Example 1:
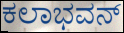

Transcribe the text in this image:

ಕಲಾಭವನ್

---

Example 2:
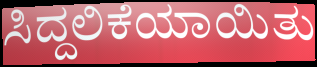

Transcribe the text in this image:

ಸಿದ್ದಲಿಕೆಯಾಯಿತು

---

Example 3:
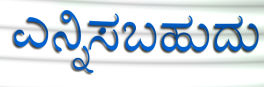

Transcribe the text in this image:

ಎನ್ನಿಸಬಹುದು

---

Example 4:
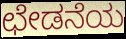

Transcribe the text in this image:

ಛೇಡನೆಯ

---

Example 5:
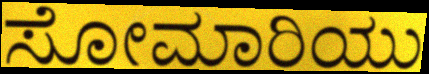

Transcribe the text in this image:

ಸೋಮಾರಿಯು